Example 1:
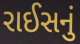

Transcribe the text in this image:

રાઈસનું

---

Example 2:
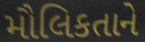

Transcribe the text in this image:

મૌલિકતાને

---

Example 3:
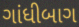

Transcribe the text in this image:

ગાંધીબાગ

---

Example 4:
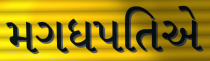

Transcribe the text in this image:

મગધપતિએ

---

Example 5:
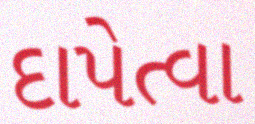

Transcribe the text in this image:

દાપેત્વા